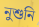
নুশুনি